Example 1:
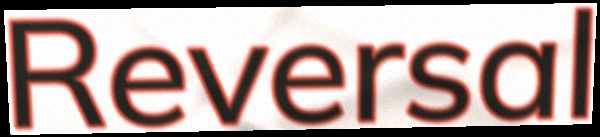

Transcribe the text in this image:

Reversal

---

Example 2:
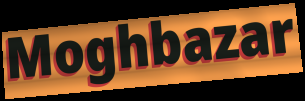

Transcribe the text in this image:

Moghbazar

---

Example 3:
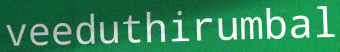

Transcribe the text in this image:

veeduthirumbal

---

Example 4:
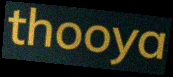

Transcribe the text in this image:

thooya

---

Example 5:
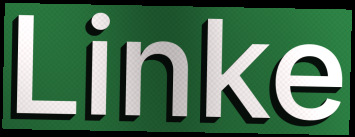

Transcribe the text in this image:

Linke